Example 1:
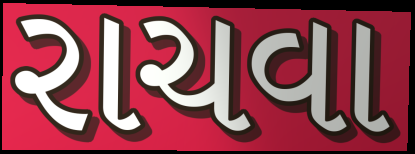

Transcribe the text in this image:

રાચવા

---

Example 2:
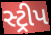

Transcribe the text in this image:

સ્ટ્રીપ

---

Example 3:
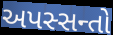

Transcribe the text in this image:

અપસ્સન્તો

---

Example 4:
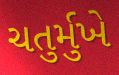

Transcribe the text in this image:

ચતુર્મુખે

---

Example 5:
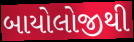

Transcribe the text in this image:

બાયોલોજીથી